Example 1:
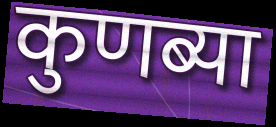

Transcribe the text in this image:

कुणब्या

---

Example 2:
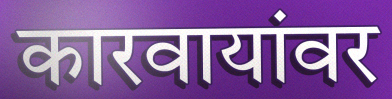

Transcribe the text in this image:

कारवायांवर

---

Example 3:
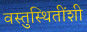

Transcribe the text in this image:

वस्तुस्थितींशी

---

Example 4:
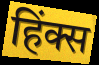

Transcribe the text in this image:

हिंक्स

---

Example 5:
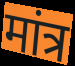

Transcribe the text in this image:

मांत्र